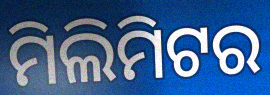
ମିଲିମିଟର